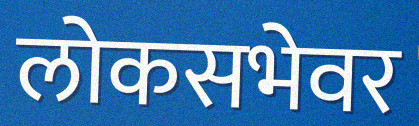
लोकसभेवर